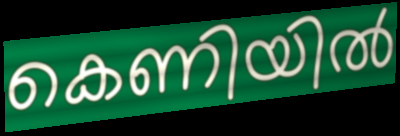
കെണിയിൽ